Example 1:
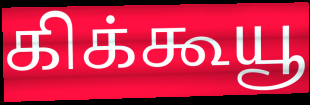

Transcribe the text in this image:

கிக்கூயூ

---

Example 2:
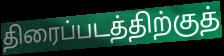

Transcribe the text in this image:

திரைப்படத்திற்குத்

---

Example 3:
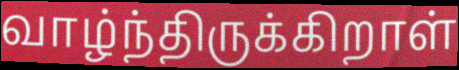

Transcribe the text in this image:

வாழ்ந்திருக்கிறாள்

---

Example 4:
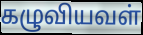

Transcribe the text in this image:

கழுவியவள்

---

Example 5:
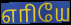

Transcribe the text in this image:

எரியே